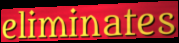
eliminates